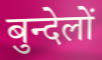
बुन्देलों